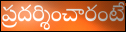
ప్రదర్శించారంటే